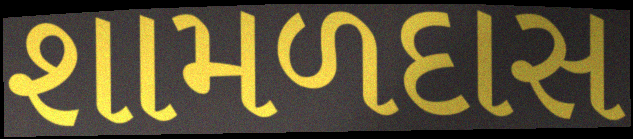
શામળદાસ